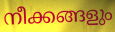
നീക്കങ്ങളും